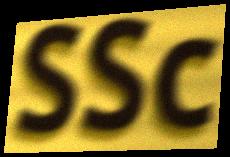
SSc